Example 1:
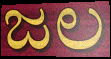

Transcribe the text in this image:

ಜಲ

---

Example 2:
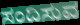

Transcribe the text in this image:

ಸಂದಿಸುವ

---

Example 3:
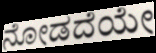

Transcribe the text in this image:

ನೋಡದೆಯೇ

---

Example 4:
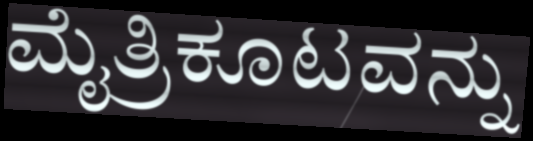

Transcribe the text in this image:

ಮೈತ್ರಿಕೂಟವನ್ನು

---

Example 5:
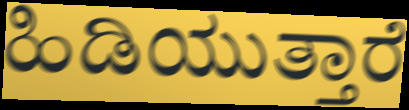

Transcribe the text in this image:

ಹಿಡಿಯುತ್ತಾರೆ